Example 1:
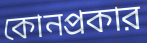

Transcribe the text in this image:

কোনপ্রকার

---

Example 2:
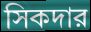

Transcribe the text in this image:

সিকদার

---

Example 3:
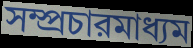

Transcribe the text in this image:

সম্প্রচারমাধ্যম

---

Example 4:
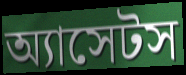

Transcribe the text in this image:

অ্যাসেটস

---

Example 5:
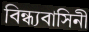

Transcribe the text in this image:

বিন্ধ্যবাসিনী